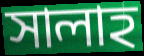
সালাহ